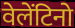
वेलेंटिनो